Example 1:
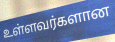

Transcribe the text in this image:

உள்ளவர்களான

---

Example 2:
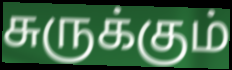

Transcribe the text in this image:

சுருக்கும்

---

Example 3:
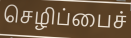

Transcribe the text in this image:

செழிப்பைச்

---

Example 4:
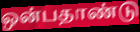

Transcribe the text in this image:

ஒன்பதாண்டு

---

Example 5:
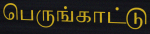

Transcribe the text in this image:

பெருங்காட்டு